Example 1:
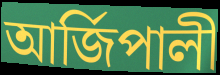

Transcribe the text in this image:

আৰ্জিপালী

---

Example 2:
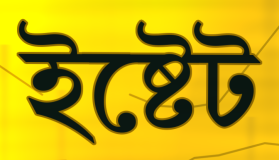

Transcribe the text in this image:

ইষ্টেট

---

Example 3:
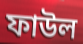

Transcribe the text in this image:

ফাউল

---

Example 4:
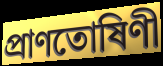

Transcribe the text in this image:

প্ৰাণতোষিণী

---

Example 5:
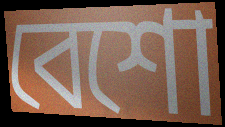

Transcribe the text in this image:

বেশো